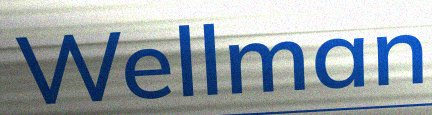
Wellman